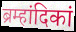
ब्रम्हांदिकां